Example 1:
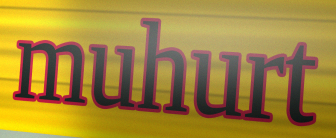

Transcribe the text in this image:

muhurt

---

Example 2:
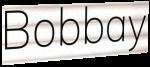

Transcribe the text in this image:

Bobbay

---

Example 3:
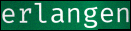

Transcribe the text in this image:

erlangen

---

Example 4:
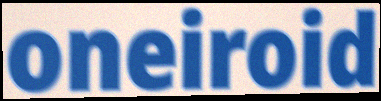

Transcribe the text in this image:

oneiroid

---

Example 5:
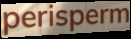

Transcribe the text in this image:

perisperm